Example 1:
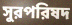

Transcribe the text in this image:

সুরপরিষদ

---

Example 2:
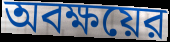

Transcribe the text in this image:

অবক্ষয়ের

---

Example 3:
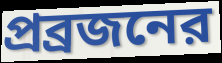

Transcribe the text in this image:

প্রব্রজনের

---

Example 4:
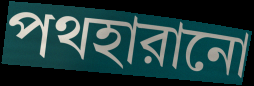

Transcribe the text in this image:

পথহারানো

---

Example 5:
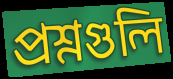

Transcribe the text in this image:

প্রশ্নগুলি